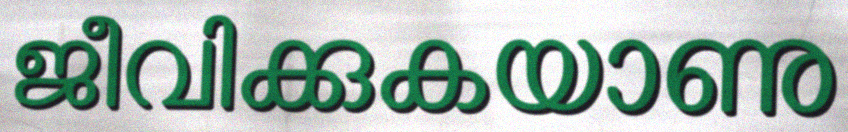
ജീവിക്കുകയാണു